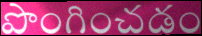
పొంగించడం